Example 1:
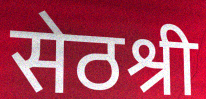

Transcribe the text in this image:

सेठश्री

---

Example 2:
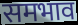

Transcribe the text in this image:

समभाव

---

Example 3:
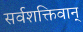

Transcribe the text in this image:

सर्वशक्तिवान्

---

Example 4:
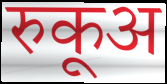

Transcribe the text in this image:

रुकूअ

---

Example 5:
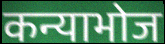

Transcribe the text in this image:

कन्याभोज